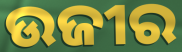
ଉଜୀର